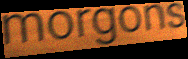
morgons